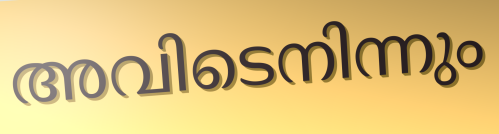
അവിടെനിന്നും